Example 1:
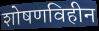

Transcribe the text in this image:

शोषणविहीन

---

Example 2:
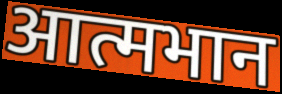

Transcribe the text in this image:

आत्मभान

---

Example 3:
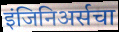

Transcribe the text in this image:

इंजिनिअर्सचा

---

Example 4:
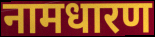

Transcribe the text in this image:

नामधारण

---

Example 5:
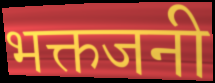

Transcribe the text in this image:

भक्तजनी